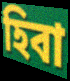
হিবা